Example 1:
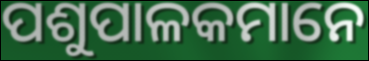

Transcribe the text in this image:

ପଶୁପାଳକମାନେ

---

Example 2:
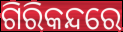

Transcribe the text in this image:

ଗିରିକନ୍ଦରେ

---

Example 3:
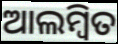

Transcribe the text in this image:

ଆଲମ୍ୱିତ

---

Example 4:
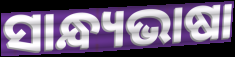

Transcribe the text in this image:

ସାନ୍ଧ୍ୟଭାଷା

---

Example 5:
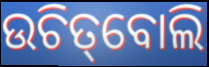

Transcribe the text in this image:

ଉଚିତ୍‌ବୋଲି